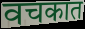
वचकात